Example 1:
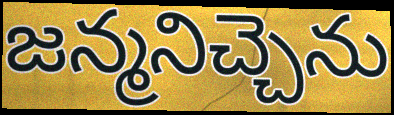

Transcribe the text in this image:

జన్మనిచ్చెను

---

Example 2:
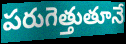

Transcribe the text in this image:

పరుగెత్తుతూనే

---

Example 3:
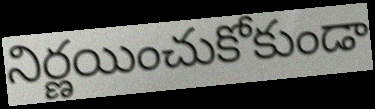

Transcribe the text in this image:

నిర్ణయించుకోకుండా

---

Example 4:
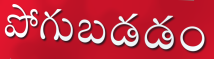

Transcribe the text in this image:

పోగుబడడం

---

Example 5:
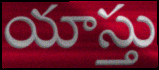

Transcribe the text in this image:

యాస్తు